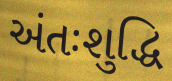
અંતઃશુદ્ધિ